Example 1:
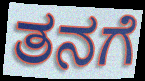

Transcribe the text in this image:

ತನಗೆ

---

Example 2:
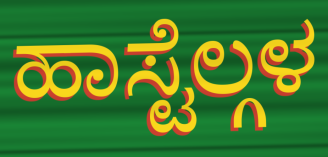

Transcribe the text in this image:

ಹಾಸ್ಟೆಲ್ಗಳ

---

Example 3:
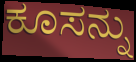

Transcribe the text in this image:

ಕೂಸನ್ನು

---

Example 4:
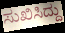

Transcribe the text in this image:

ಸುಖಿಸಿದ್ದು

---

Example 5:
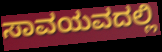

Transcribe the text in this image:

ಸಾವಯವದಲ್ಲಿ